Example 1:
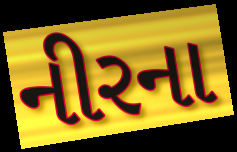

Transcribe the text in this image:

નીરના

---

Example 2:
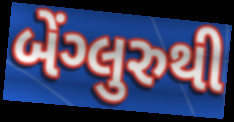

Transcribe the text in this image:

બેંગ્લુરુથી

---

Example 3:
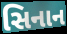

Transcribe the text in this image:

સિનાન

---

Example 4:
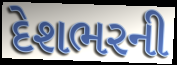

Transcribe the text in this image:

દેશભરની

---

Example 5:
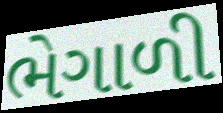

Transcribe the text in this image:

ભેગાળી